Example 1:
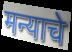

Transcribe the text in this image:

मन्याचे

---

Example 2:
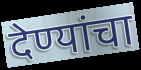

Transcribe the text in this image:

देण्यांचा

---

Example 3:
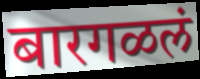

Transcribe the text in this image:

बारगळलं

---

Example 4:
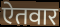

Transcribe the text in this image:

ऐतवार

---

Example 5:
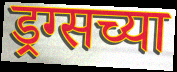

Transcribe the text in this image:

ड्रग्सच्या